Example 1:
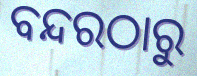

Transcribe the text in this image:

ବନ୍ଦରଠାରୁ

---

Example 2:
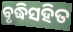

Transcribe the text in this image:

ବୃଦ୍ଧିସହିତ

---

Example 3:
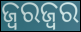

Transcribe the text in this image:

ଜ୍ୱରଜ୍ୱର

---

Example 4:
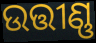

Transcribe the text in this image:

ଉତ୍ତୀଣ୍ଣ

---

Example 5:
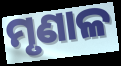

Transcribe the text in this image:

ମୃଣାଳ